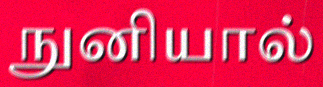
நுனியால்